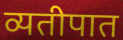
व्यतीपात